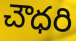
చౌధరి